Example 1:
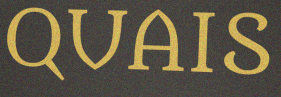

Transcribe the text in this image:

QUAIS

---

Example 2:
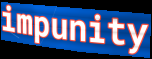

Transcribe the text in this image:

impunity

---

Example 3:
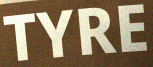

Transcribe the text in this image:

TYRE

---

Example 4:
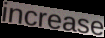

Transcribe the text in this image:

increase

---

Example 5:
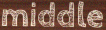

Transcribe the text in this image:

middle